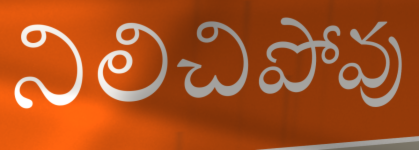
నిలిచిపోవు